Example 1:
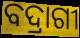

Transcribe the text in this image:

ବଦ୍ରାଗୀ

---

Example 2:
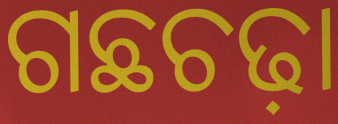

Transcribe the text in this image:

ଗଛଚଢ଼ା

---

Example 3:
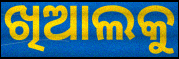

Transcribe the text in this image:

ଖିଆଲକୁ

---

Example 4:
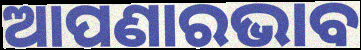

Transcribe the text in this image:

ଆପଣାରଭାବ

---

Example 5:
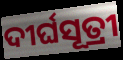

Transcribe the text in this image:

ଦୀର୍ଘସୂତ୍ରୀ